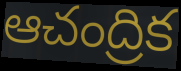
ఆచంద్రిక